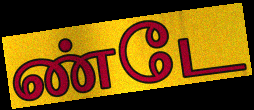
ண்டே